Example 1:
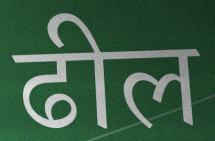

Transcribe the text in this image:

ढील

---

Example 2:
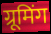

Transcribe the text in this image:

ग्रूमिंग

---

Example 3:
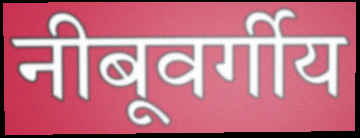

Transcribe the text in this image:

नीबूवर्गीय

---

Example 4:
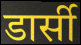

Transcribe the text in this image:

डार्सी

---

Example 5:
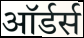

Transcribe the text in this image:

ऑर्डर्स